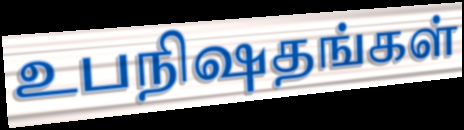
உபநிஷதங்கள்